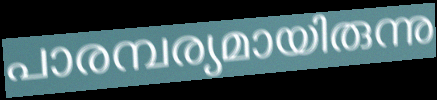
പാരമ്പര്യമായിരുന്നു